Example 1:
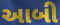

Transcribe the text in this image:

આબી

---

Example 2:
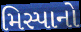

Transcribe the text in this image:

મિસ્પાનો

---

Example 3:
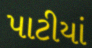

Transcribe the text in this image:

પાટીયાં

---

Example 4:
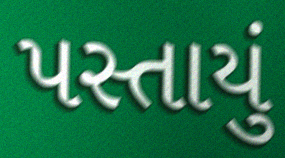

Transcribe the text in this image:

પસ્તાયું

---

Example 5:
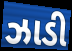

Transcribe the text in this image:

ઝાડી